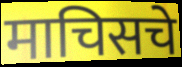
माचिसचे